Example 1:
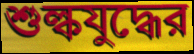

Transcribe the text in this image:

শুল্কযুদ্ধের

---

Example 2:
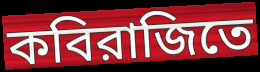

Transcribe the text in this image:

কবিরাজিতে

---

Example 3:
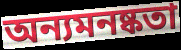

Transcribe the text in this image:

অন্যমনষ্কতা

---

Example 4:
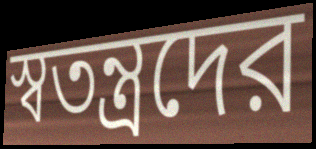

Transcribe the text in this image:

স্বতন্ত্রদের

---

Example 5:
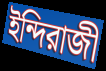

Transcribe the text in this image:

ইন্দিরাজী